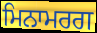
ਮਿਨਾਮਰਗ